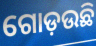
ଗୋଡ଼ଉଛି